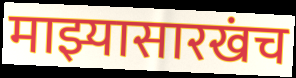
माझ्यासारखंच